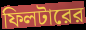
ফিলটারের